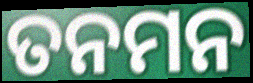
ତନମନ